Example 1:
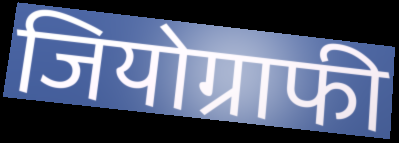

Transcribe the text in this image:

जियोग्राफी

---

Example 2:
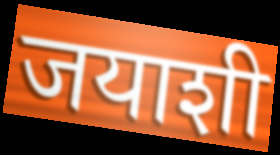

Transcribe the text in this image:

जयाशी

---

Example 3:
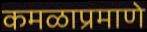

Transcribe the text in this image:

कमळाप्रमाणे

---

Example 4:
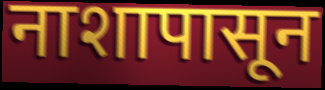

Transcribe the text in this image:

नाशापासून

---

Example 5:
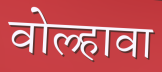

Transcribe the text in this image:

वोल्हावा